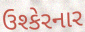
ઉશ્કેરનાર